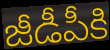
జీడీపీకి